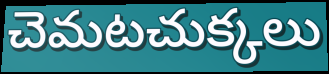
చెమటచుక్కలు